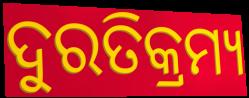
ଦୁରତିକ୍ରମ୍ୟ